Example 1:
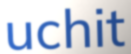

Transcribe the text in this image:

uchit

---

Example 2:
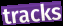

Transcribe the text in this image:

tracks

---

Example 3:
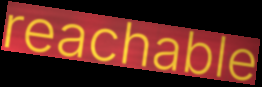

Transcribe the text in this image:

reachable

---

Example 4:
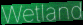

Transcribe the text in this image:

Wetland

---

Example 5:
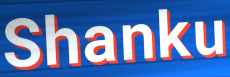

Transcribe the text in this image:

Shanku